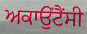
ਅਕਾਉਂਟੈਂਸੀ